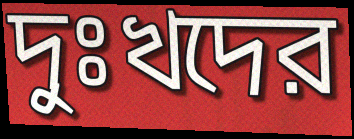
দুঃখদের